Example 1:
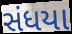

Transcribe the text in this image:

સંધયા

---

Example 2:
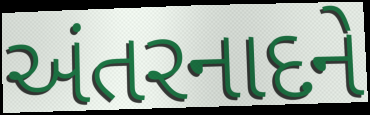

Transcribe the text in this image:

અંતરનાદને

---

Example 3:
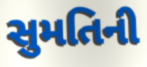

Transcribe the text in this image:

સુમતિની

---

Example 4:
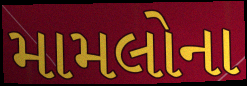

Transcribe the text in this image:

મામલોના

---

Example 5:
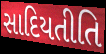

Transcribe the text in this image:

સાદિયતીતિ